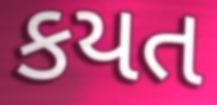
કયત